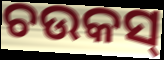
ଚଉକସ୍